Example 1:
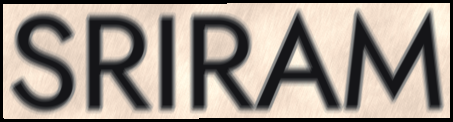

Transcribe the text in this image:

SRIRAM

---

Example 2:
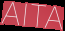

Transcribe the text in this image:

AITA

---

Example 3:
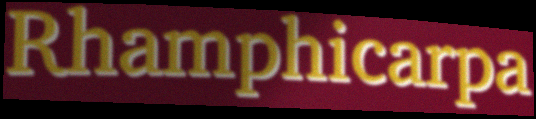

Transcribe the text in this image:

Rhamphicarpa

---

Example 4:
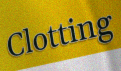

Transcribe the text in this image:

Clotting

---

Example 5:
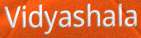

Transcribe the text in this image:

Vidyashala